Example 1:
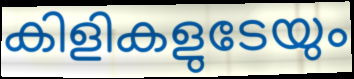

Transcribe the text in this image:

കിളികളുടേയും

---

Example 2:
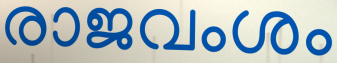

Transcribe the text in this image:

രാജവംശം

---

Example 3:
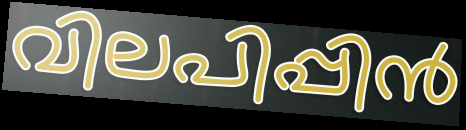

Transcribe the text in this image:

വിലപിപ്പിൻ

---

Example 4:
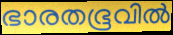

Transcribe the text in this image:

ഭാരതഭൂവിൽ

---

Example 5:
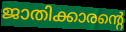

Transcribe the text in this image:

ജാതിക്കാരന്റെ